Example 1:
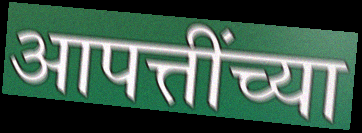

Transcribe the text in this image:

आपत्तींच्या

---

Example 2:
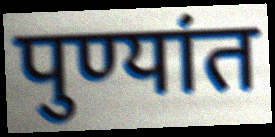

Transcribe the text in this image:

पुण्यांत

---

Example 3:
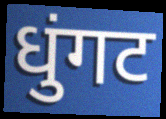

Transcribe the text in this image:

धुंगट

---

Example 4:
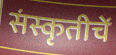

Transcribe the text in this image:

संस्कृतीचें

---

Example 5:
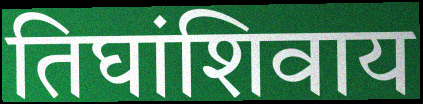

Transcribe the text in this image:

तिघांशिवाय